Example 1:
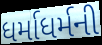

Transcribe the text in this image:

ધર્માધર્મની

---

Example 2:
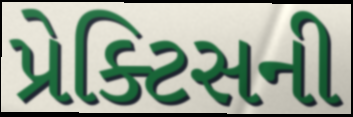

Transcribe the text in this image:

પ્રેક્ટિસની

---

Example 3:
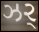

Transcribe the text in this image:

ઝર્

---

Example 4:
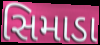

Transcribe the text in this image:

સિમાડા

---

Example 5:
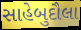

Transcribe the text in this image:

સાહેબુદૌલા